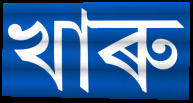
খাৰু